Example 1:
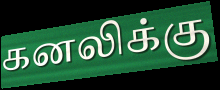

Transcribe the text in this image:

கனலிக்கு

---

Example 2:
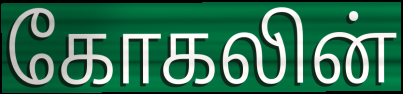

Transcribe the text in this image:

கோகலின்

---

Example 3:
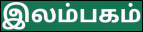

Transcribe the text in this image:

இலம்பகம்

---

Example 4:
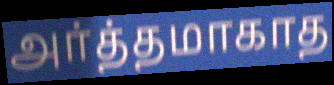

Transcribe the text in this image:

அர்த்தமாகாத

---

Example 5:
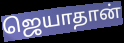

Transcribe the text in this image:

ஜெயாதான்